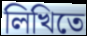
লিখিতে